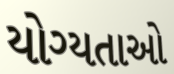
યોગ્યતાઓ